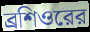
ব্রশিওরের